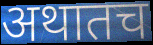
अथातच